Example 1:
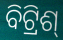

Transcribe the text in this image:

ବିଟ୍ରିଶ୍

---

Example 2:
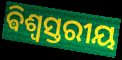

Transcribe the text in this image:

ଵିଶ୍ୱସ୍ତରୀୟ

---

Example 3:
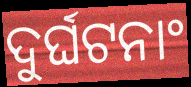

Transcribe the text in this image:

ଦୁର୍ଘଟନାଂ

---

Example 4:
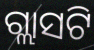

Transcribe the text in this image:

ଗ୍ଲାସଟି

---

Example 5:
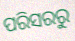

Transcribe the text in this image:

ପରିସରରୁ